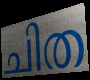
ചിത